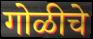
गोळीचे